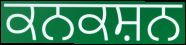
ਕਨਕਸ਼ਨ